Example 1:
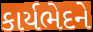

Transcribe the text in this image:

કાર્યભેદને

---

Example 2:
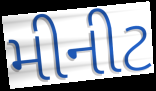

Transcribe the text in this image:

મીનીટ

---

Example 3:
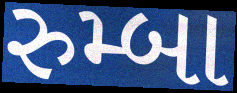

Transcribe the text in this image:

રુમ્બા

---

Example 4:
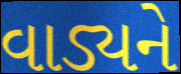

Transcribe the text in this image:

વાડ્યને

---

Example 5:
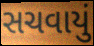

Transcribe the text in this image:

સચવાયું